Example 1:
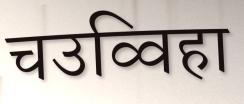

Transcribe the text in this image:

चउव्विहा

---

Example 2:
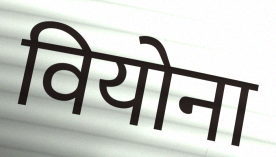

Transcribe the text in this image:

वियोना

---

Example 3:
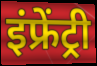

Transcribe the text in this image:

इंफ्रेंट्री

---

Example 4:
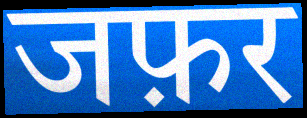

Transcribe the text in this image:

जफ़र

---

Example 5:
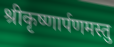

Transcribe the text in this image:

श्रीकृष्णार्पणमस्तु